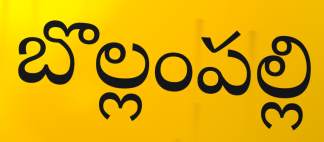
బొల్లంపల్లి